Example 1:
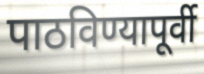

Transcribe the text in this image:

पाठविण्यापूर्वी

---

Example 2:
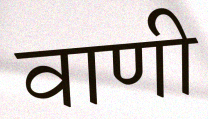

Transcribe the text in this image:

वाणी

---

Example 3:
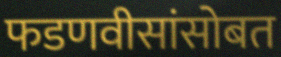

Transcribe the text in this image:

फडणवीसांसोबत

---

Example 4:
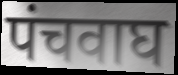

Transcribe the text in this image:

पंचवाघ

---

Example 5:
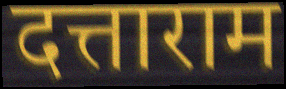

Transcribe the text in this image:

दत्ताराम